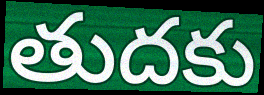
తుదకు